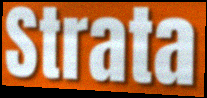
Strata